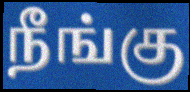
நீங்கு